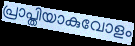
പ്രാപ്തിയാകുവോളം